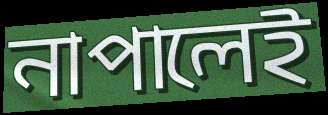
নাপালেই